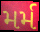
મર્મ